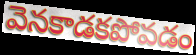
వెనకాడకపోవడం